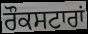
ਰੌਕਸਟਾਰਾਂ